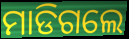
ମାଡିଗଲେ